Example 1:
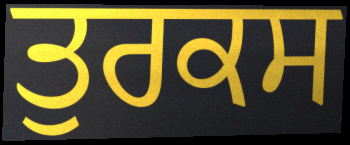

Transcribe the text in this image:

ਤੁਰਕਸ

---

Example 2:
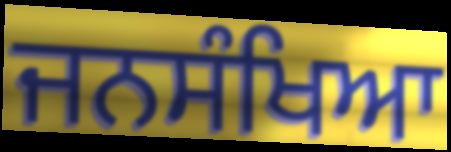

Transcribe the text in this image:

ਜਨਸੰਖਿਆ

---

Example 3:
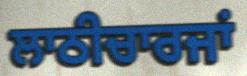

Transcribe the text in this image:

ਲਾਠੀਚਾਰਜਾਂ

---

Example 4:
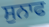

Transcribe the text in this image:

ਸੁਨਾਫ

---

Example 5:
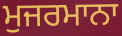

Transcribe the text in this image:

ਮੁਜਰਮਾਨਾ